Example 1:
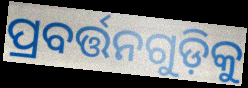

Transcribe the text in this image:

ପ୍ରବର୍ତ୍ତନଗୁଡ଼ିକୁ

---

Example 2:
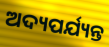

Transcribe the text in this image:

ଅଦ୍ୟପର୍ଯ୍ୟନ୍ତ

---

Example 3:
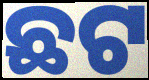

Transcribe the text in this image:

ଛଟ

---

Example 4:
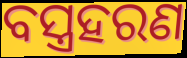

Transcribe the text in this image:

ବସ୍ତ୍ରହରଣ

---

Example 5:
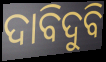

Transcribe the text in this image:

ଦାବିଦୁବି